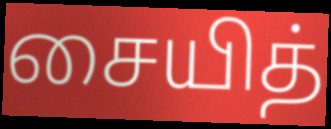
சையித்